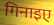
गिनाइए